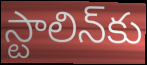
స్టాలిన్‌కు